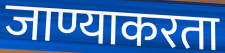
जाण्याकरता